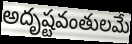
అదృష్టవంతులమే